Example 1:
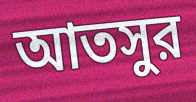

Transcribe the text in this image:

আতসুর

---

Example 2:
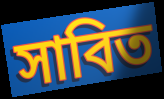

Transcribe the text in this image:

সাবিত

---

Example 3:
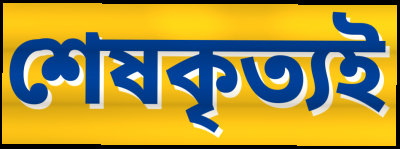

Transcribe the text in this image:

শেষকৃত্যই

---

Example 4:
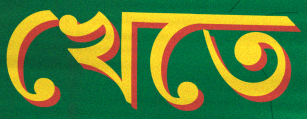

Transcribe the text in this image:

খেতে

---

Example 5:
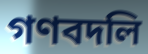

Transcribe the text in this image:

গণবদলি